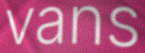
vans